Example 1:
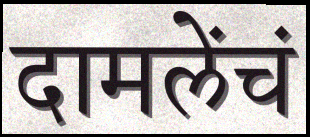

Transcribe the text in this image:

दामलेंचं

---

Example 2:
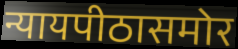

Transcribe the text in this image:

न्यायपीठासमोर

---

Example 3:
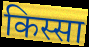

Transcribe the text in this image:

किस्सा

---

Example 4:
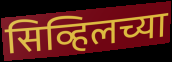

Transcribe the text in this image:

सिव्हिलच्या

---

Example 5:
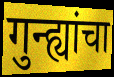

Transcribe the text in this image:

गुन्ह्यांचा